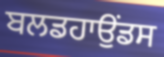
ਬਲਡਹਾਉਂਡਸ